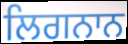
ਲਿਗਨਾਨ